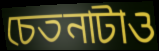
চেতনাটাও